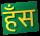
हँस